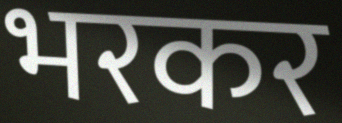
भरकर